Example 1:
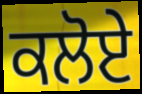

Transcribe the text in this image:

ਕਲੋਏ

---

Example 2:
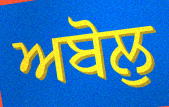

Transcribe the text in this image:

ਅਬੋਲੁ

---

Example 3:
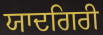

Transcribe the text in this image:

ਯਾਦਗਿਰੀ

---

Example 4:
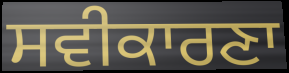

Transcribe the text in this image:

ਸਵੀਕਾਰਣਾ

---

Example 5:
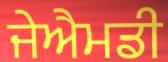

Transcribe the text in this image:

ਜੇਐਮਡੀ